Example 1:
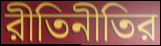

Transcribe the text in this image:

রীতিনীতির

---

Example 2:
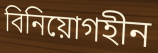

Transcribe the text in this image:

বিনিয়োগহীন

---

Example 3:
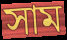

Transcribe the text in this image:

সাম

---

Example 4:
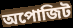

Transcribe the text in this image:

অপোজিট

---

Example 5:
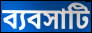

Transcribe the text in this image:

ব্যবসাটি